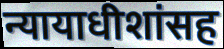
न्यायाधीशांसह